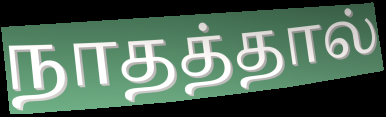
நாதத்தால்